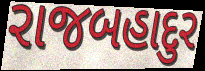
રાજબહાદુર